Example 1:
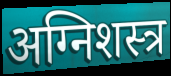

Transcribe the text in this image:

अग्निशस्त्र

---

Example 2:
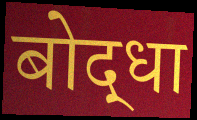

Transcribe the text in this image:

बोद्धा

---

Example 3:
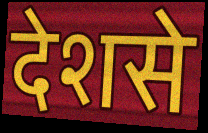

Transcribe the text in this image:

देशसे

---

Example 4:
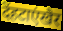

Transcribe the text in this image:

देंहटाएंखैर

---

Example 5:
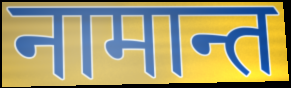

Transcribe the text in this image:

नामान्त